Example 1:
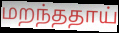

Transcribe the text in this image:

மறந்ததாய்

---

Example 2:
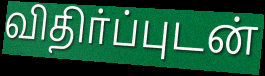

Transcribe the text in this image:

விதிர்ப்புடன்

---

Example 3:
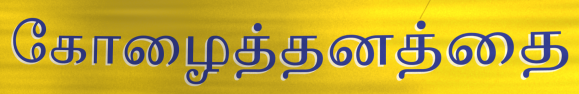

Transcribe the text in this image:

கோழைத்தனத்தை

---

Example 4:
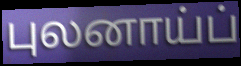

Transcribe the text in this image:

புலனாய்ப்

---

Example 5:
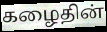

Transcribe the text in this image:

கழைதின்